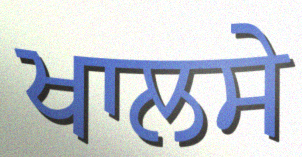
ਖਾਲਸੇ